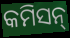
କମିସନ୍